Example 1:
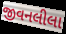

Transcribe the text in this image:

જીવનલીલા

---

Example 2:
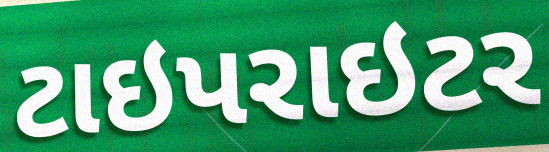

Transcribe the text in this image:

ટાઇપરાઇટર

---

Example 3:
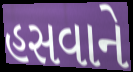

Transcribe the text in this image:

હસવાને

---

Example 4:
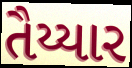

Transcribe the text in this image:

તૈય્યાર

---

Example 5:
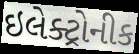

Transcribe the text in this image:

ઇલેક્ટ્રોનીક